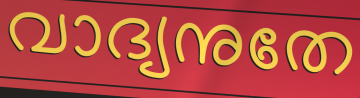
വാദ്യനുതേ